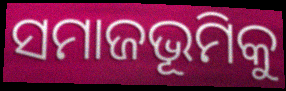
ସମାଜଭୂମିକୁ